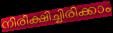
നിരീക്ഷിച്ചിരിക്കാം